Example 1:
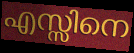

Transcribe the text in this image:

എസ്സിനെ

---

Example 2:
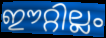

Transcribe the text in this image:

ഈറ്റില്ലം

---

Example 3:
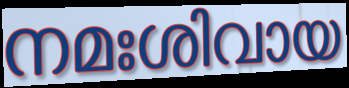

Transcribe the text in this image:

നമഃശിവായ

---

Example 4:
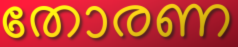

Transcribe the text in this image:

തോരണ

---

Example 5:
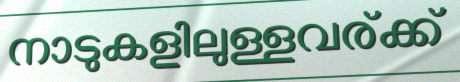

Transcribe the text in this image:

നാടുകളിലുള്ളവര്ക്ക്